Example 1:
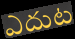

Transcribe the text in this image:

ఎదుట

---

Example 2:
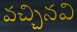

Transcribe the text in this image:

వచ్చినవి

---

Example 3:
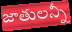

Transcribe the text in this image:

జాతులన్నీ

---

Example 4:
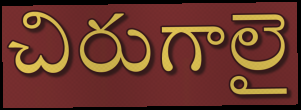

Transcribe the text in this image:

చిరుగాలై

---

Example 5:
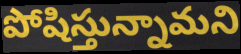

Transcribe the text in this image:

పోషిస్తున్నామని